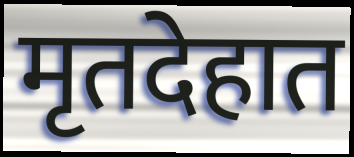
मृतदेहात